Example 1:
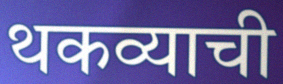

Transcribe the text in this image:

थकव्याची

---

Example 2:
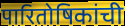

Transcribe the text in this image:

पारितोषिकांची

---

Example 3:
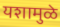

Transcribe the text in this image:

यशामुळे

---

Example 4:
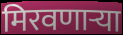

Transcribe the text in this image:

मिरवणाऱ्या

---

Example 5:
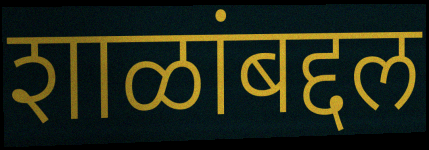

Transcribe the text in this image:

शाळांबद्दल